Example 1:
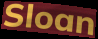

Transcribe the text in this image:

Sloan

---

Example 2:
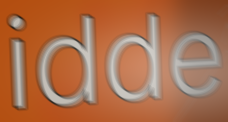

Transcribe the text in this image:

idde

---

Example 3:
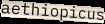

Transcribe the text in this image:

aethiopicus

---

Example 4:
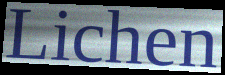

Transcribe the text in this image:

Lichen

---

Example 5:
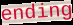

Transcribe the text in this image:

ending